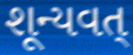
શૂન્યવત્